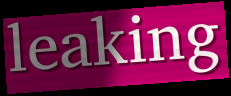
leaking